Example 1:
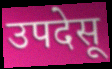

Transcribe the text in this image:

उपदेसू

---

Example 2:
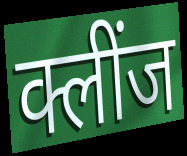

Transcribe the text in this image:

क्लींज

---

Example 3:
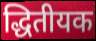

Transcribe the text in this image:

द्धितीयक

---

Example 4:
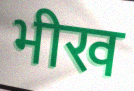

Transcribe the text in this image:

भीख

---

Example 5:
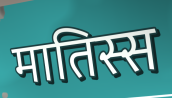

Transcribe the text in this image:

मातिस्स